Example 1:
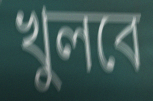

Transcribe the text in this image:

খুলবে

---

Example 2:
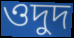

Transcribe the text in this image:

ওদুদ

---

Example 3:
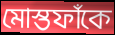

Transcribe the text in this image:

মোস্তফাঁকে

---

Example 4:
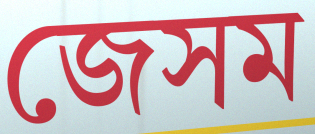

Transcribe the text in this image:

জেসম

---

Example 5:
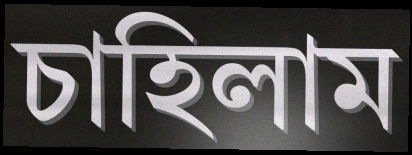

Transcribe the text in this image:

চাহিলাম